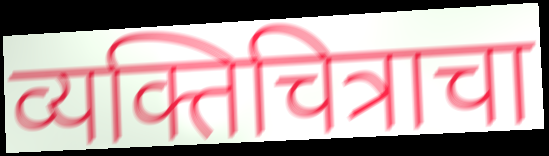
व्यक्तिचित्राचा